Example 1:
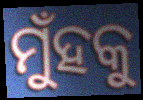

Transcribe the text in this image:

ମୁଁହକୁ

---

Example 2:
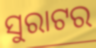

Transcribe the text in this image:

ସୁରାଟର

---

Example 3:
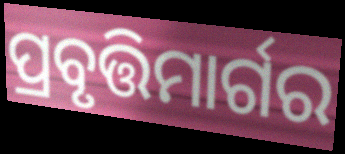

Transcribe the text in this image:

ପ୍ରବୃତ୍ତିମାର୍ଗର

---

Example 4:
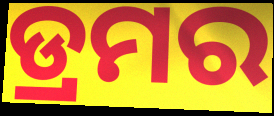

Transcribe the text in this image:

ଡ୍ରମର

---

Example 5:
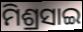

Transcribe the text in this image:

ମିଶ୍ରସାଇ